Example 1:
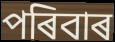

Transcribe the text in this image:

পৰিবাৰ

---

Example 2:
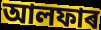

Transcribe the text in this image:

আলফাৰ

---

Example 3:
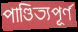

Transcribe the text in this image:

পাণ্ডিত্যপূৰ্ণ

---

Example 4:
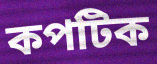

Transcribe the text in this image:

কপটিক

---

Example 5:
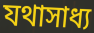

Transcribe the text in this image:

যথাসাধ্য